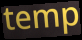
temp